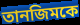
তানজিমকে